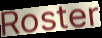
Roster